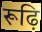
रूढ़ि